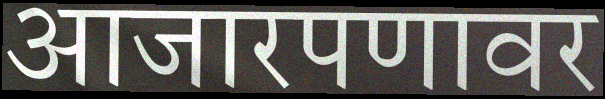
आजारपणावर